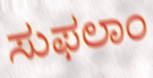
ಸುಫಲಾಂ